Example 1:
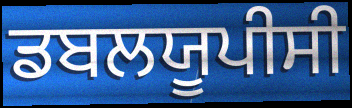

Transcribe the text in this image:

ਡਬਲਯੂਪੀਸੀ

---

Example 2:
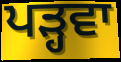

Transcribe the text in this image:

ਪੜ੍ਹਵਾ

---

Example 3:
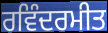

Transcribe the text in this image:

ਰਵਿੰਦਰਮੀਤ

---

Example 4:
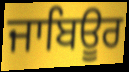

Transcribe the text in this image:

ਜਾਬਿਊਰ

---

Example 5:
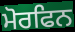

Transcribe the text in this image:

ਮੋਰਫਿਨ